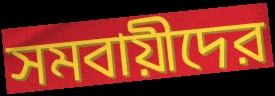
সমবায়ীদের